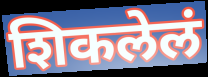
शिकलेलं